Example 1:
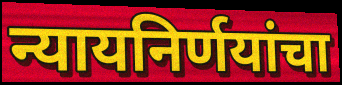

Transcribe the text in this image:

न्यायनिर्णयांचा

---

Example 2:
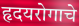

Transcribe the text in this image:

हृदयरोगाचे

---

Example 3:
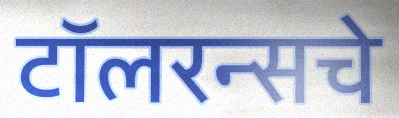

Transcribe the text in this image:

टॉलरन्सचे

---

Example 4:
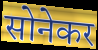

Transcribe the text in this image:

सोनेकर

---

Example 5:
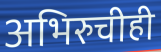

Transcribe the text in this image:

अभिरुचीही